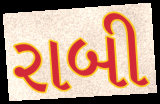
રાબી